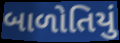
બાળોતિયું